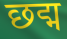
छद्म